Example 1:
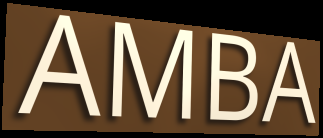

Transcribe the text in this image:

AMBA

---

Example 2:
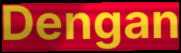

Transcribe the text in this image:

Dengan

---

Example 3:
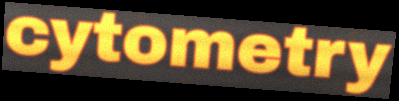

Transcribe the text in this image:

cytometry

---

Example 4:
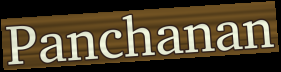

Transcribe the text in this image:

Panchanan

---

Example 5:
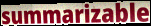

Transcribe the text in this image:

summarizable